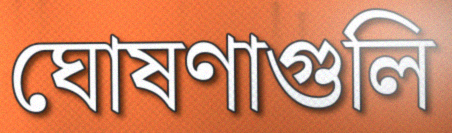
ঘোষণাগুলি